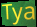
Tya